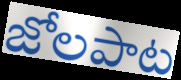
జోలపాట